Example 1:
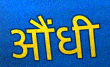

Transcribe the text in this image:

औंधी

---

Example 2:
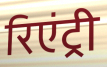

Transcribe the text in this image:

रिएंट्री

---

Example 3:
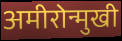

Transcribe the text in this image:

अमीरोन्मुखी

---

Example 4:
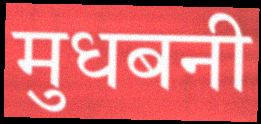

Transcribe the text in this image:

मुधबनी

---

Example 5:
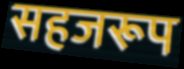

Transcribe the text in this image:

सहजरूप